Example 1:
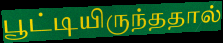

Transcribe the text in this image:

பூட்டியிருந்ததால்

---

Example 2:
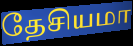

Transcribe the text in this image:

தேசியமா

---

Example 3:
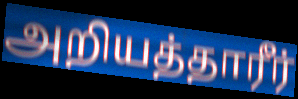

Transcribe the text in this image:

அறியத்தாரீர்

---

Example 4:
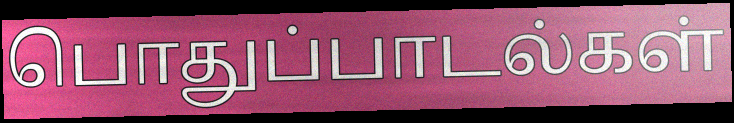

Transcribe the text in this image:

பொதுப்பாடல்கள்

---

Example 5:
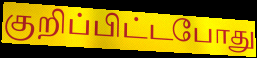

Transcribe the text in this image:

குறிப்பிட்டபோது